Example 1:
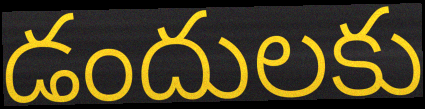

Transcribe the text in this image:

డందులకు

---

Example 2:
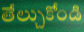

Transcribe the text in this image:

తేల్చుకోండి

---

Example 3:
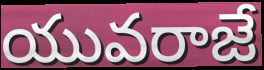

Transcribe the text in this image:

యువరాజే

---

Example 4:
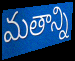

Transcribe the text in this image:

మతాన్ని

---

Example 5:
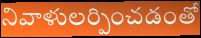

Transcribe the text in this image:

నివాళులర్పించడంతో